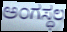
ಅಂಗಸ್ಥಲ